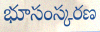
భూసంస్కరణ